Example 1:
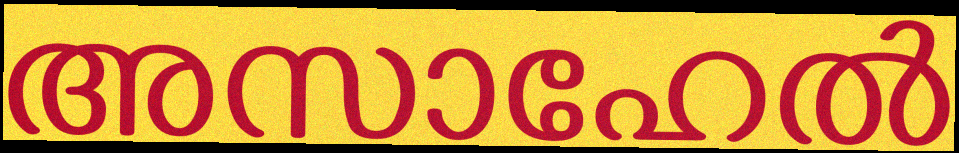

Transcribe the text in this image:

അസാഹേൽ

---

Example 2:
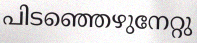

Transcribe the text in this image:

പിടഞ്ഞെഴുനേറ്റു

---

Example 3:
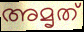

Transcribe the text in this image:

അമൃത്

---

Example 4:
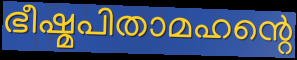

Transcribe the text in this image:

ഭീഷ്മപിതാമഹന്റെ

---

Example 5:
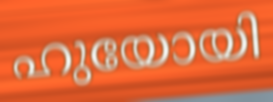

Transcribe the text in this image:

ഹുയോയി